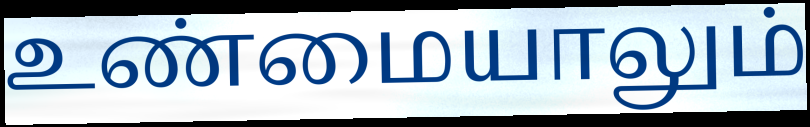
உண்மையாலும்